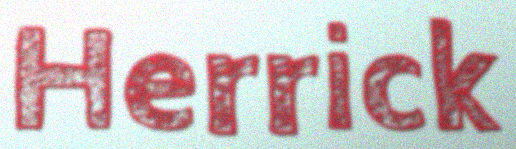
Herrick